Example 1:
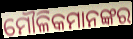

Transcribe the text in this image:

ମୌଳିକମାନଙ୍କର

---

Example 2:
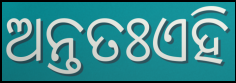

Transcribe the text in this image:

ଅନ୍ତତଃଏହି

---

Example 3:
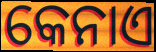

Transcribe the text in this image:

କେନାଏ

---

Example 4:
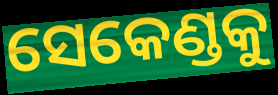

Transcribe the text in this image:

ସେକେଣ୍ଡକୁ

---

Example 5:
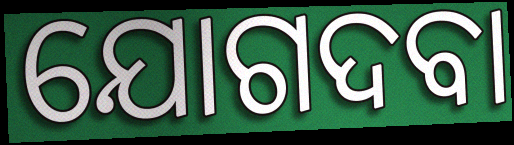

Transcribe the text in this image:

ଯୋଗଦବା